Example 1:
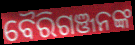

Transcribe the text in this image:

ବୈରିଗଞ୍ଜନଙ୍କ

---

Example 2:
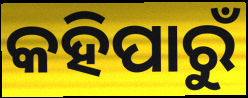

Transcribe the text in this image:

କହିପାରୁଁ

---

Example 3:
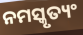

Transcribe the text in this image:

ନମସ୍କୃତ୍ୟଂ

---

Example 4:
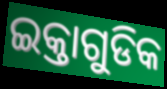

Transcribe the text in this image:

ଇକ୍ତାଗୁଡିକ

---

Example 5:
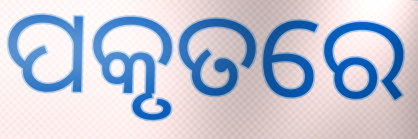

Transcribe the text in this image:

ପକୃତରେ